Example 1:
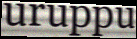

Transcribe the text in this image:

uruppu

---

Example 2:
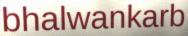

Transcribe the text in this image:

bhalwankarb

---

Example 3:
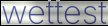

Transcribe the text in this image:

wettest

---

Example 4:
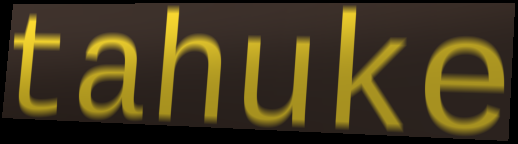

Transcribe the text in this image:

tahuke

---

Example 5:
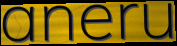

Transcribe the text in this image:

aneru